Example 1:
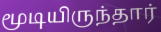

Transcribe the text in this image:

மூடியிருந்தார்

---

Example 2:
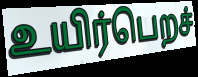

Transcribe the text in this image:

உயிர்பெறச்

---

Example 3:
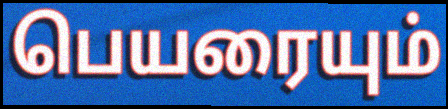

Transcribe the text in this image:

பெயரையும்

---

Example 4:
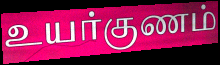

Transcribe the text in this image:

உயர்குணம்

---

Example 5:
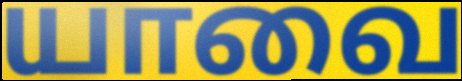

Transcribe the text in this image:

யாவை